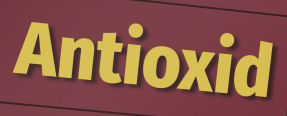
Antioxid